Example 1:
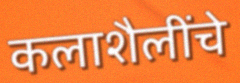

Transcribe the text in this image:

कलाशैलींचे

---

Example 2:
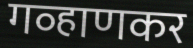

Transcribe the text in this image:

गव्हाणकर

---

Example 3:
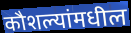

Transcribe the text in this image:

कौशल्यांमधील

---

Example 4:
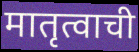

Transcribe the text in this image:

मातृत्वाची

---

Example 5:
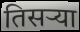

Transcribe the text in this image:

तिसऱ्या